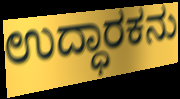
ಉದ್ಧಾರಕನು